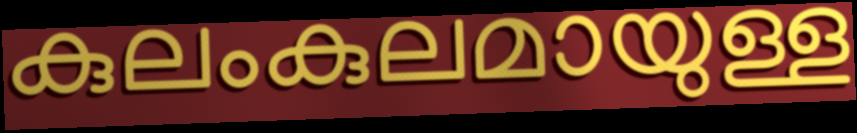
കുലംകുലമായുള്ള